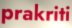
prakriti